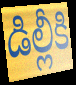
డిల్లీకి